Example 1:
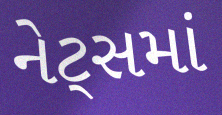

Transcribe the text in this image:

નેટ્સમાં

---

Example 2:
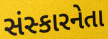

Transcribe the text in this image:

સંસ્કારનેતા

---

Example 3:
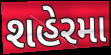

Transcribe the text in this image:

શહેરમા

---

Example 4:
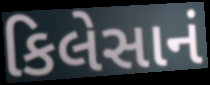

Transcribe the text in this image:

કિલેસાનં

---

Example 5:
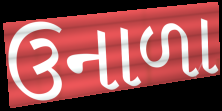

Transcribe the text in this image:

ઉનાળા